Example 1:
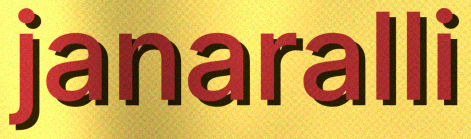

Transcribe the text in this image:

janaralli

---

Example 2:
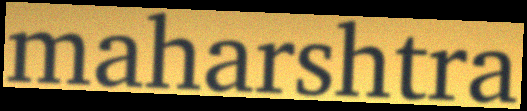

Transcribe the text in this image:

maharshtra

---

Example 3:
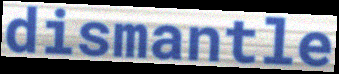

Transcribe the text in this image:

dismantle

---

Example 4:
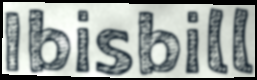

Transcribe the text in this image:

Ibisbill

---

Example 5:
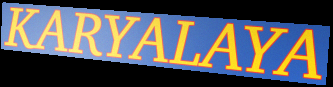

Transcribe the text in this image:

KARYALAYA